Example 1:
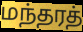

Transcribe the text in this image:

மந்தரத்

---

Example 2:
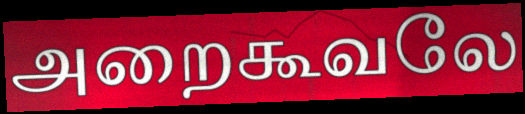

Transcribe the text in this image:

அறைகூவலே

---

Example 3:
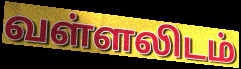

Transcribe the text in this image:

வள்ளலிடம்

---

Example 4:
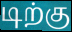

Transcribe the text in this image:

டிற்கு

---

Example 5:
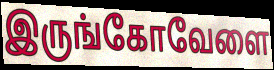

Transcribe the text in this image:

இருங்கோவேளை